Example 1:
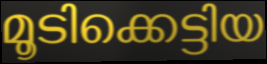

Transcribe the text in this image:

മൂടിക്കെട്ടിയ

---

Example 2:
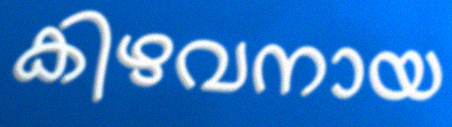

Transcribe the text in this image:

കിഴവനായ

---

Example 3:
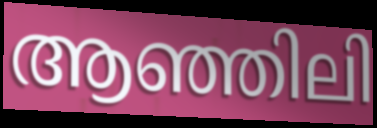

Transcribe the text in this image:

ആഞ്ഞിലി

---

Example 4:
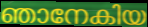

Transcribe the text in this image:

ഞാനേകിയ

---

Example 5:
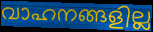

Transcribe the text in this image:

വാഹനങ്ങളില്ല